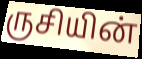
ருசியின்